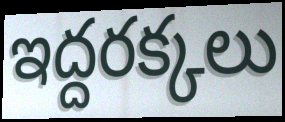
ఇద్దరక్కలు